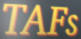
TAFs